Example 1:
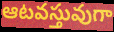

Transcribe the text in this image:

ఆటవస్తువుగా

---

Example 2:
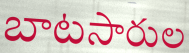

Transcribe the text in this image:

బాటసారుల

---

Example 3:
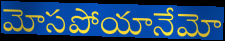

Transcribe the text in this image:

మోసపోయానేమో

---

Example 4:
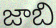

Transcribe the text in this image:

జాబి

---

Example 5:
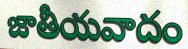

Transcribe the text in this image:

జాతీయవాదం